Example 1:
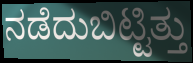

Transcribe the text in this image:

ನಡೆದುಬಿಟ್ಟಿತ್ತು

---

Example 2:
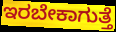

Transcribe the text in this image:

ಇರಬೇಕಾಗುತ್ತೆ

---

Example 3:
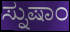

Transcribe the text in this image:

ಸ್ನುಷಾಂ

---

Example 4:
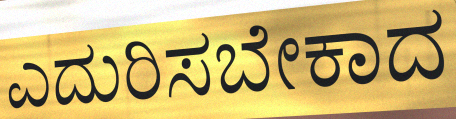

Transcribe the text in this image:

ಎದುರಿಸಬೇಕಾದ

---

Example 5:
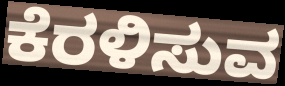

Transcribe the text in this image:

ಕೆರಳಿಸುವ